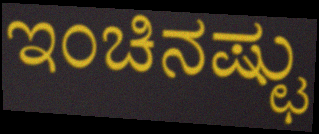
ಇಂಚಿನಷ್ಟು